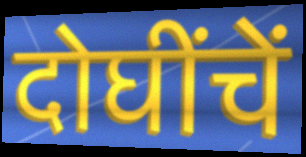
दोघींचें